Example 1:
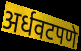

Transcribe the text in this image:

अर्धवटपणे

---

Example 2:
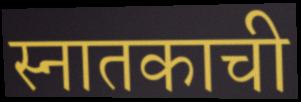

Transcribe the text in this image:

स्नातकाची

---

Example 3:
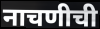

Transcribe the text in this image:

नाचणीची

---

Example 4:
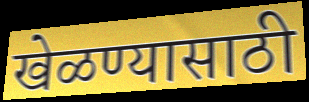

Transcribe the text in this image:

खेळण्यासाठी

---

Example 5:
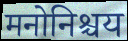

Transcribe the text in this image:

मनोनिश्चय